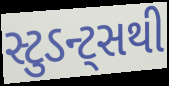
સ્ટુડન્ટ્સથી